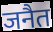
जनैत